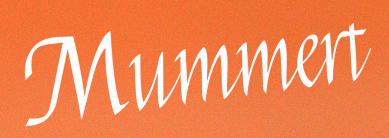
Mummert